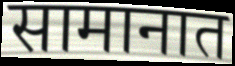
सामानात